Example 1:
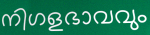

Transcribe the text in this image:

നിഗളഭാവവും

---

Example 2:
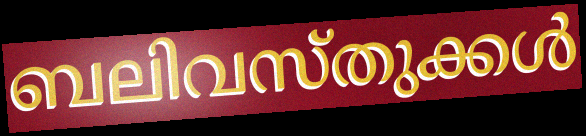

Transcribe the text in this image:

ബലിവസ്തുക്കൾ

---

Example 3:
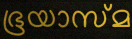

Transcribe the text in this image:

ഭൂയാസ്മ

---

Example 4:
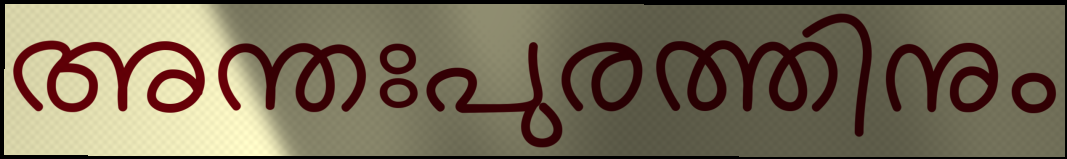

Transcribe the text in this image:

അന്തഃപുരത്തിനും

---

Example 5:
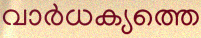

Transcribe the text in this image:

വാർധക്യത്തെ